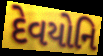
દેવયોનિ